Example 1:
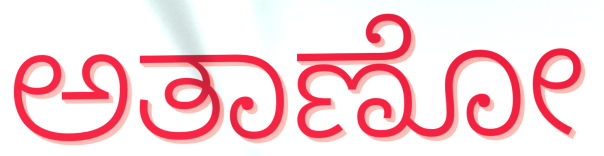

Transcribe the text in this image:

ಅತಾಣೋ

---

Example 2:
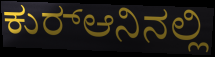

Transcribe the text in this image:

ಕುರ್‍ಆನಿನಲ್ಲಿ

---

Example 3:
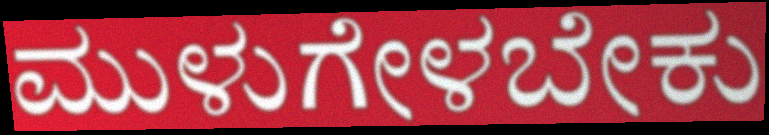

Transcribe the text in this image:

ಮುಳುಗೇಳಬೇಕು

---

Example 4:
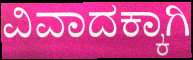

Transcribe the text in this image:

ವಿವಾದಕ್ಕಾಗಿ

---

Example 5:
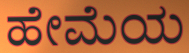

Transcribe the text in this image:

ಹೇಮೆಯ